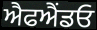
ਐਫਐਂਡਓ